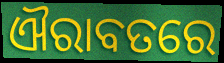
ଐରାବତରେ